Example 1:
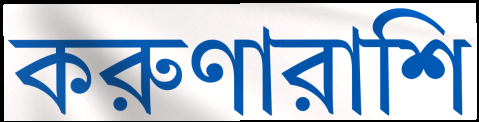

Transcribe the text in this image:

করুণারাশি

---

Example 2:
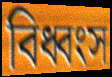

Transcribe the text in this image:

বিধ্বংস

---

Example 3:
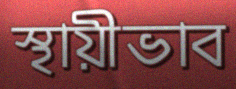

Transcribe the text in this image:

স্থায়ীভাব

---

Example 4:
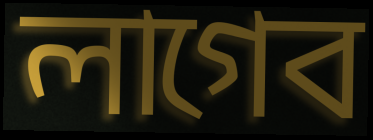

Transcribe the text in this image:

লাগেব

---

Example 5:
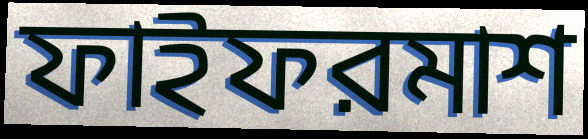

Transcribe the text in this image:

ফাইফরমাশ